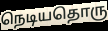
நெடியதொரு